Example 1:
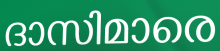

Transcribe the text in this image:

ദാസിമാരെ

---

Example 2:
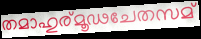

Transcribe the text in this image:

തമാഹുര്മൂഢചേതസമ്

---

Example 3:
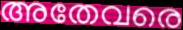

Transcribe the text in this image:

അതേവരെ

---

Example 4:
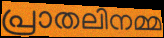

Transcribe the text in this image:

പ്രാതലിനമ്മ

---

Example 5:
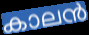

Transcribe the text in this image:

കാലൻ